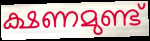
ക്ഷണമുണ്ട്